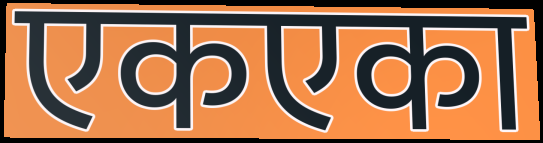
एकएका